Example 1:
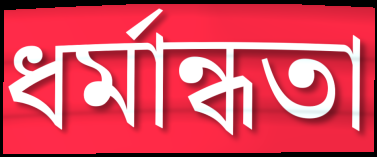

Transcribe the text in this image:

ধর্মান্ধতা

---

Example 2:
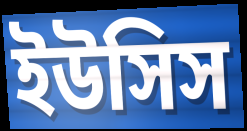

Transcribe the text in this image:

ইউসিস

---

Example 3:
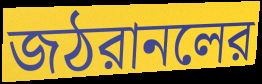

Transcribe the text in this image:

জঠরানলের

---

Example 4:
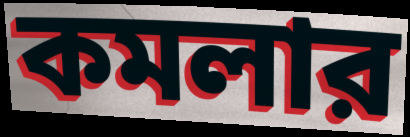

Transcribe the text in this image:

কমলার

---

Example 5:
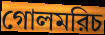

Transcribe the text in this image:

গোলমরিচ